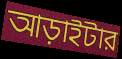
আড়াইটার